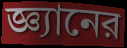
জ্ঞ্যানের